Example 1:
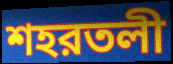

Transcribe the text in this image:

শহরতলী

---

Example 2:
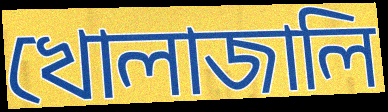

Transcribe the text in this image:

খোলাজালি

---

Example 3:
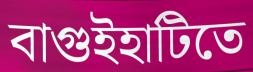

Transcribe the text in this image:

বাগুইহাটিতে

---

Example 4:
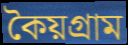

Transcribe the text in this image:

কৈয়গ্রাম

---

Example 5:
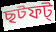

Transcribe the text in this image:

ছট্ফট্